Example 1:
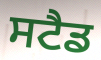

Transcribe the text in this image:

ਸਟੈਡ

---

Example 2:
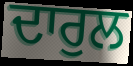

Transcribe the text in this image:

ਦਾਰੁਲ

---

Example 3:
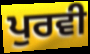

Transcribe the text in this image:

ਪੁਰਵੀ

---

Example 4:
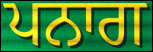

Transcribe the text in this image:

ਪਨਾਗ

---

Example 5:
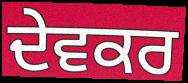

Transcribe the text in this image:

ਦੇਵਕਰ